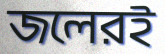
জলেরই